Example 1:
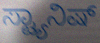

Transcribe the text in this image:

ಸ್ಟ್ಯಾನಿಷ್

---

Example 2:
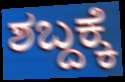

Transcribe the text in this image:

ಶಬ್ದಕ್ಕೆ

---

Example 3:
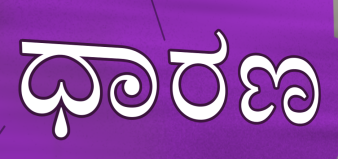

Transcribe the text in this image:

ಧಾರಣ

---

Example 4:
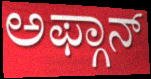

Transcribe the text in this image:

ಅಫ್ಗಾನ್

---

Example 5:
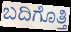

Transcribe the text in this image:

ಬದಿಗೊತ್ತಿ